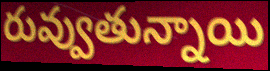
రువ్వుతున్నాయి